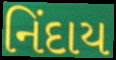
નિંદાય